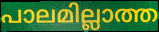
പാലമില്ലാത്ത